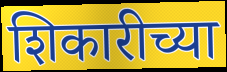
शिकारीच्या